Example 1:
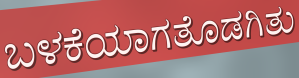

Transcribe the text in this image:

ಬಳಕೆಯಾಗತೊಡಗಿತು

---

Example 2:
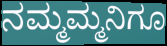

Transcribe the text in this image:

ನಮ್ಮಮ್ಮನಿಗೂ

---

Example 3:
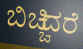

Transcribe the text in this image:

ಬಿಚ್ಚಿದರೆ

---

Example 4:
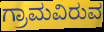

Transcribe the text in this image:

ಗ್ರಾಮವಿರುವ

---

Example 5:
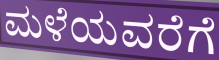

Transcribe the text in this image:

ಮಳೆಯವರೆಗೆ